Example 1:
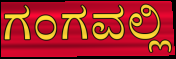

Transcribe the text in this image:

ಗಂಗವಲ್ಲಿ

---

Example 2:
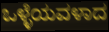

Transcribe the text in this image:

ಒಳ್ಳೆಯವಳಾದ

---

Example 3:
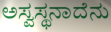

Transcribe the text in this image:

ಅಸ್ವಸ್ಥನಾದೆನು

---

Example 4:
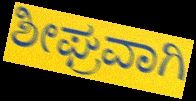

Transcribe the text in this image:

ಶೀಘ್ರವಾಗಿ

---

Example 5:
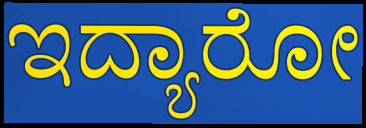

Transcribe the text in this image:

ಇದ್ಯಾರೋ